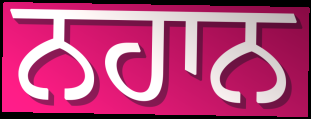
ਨਹਾਨ